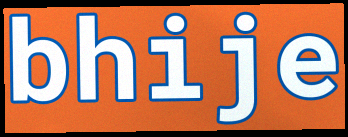
bhije